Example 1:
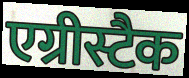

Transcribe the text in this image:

एग्रीस्टैक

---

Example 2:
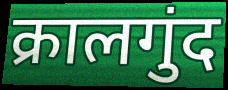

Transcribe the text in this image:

क्रालगुंद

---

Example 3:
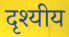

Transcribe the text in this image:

दृश्यीय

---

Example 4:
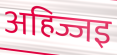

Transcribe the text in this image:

अहिज्जइ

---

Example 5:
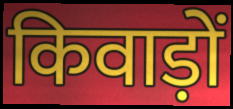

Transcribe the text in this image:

किवाड़ों